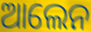
ଆଲେନ